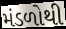
મંડળોથી